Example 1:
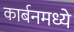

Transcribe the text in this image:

कार्बनमध्ये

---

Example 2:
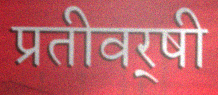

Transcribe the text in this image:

प्रतीवर्षी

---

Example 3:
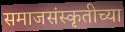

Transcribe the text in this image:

समाजसंस्कृतीच्या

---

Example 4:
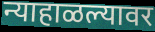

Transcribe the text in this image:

न्याहाळल्यावर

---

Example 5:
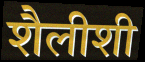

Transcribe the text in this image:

शैलीशी